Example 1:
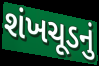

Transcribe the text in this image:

શંખચૂડનું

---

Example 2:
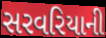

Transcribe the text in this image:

સરવરિયાની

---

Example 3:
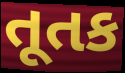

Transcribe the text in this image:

તૂતક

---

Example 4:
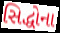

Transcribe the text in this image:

સિદ્ધોના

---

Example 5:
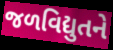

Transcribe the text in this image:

જળવિદ્યુતને